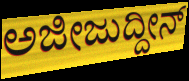
ಅಜೀಜುದ್ದೀನ್